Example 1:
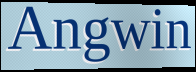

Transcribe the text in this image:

Angwin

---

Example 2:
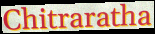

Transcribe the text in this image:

Chitraratha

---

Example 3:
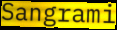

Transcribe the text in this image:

Sangrami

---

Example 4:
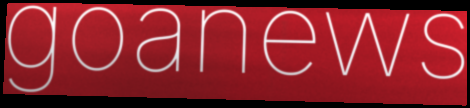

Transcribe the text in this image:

goanews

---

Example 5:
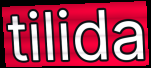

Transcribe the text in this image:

tilida